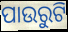
ପାଉରୁଟି